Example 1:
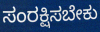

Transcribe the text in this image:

ಸಂರಕ್ಷಿಸಬೇಕು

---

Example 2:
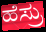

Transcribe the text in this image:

ಹೆಸ್ರು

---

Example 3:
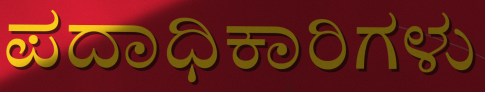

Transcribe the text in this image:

ಪದಾಧಿಕಾರಿಗಳು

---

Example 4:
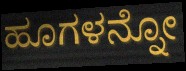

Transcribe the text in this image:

ಹೂಗಳನ್ನೋ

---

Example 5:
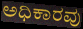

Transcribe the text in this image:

ಅಧಿಕಾರವು